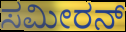
ಸಮೀರನ್